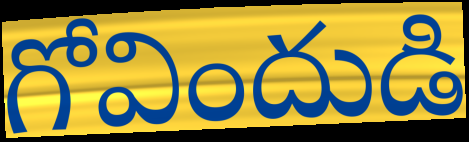
గోవిందుడి